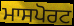
ਮਾਸਪੋਰਟ